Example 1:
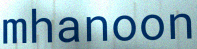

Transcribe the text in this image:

mhanoon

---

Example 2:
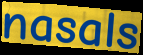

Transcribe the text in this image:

nasals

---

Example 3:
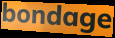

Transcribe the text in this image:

bondage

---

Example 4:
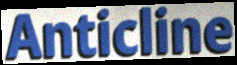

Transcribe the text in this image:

Anticline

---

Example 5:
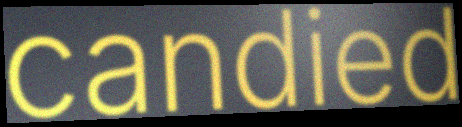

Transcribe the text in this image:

candied